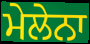
ਮੇਲੇਨਾ